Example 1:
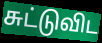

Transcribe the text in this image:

சுட்டுவிட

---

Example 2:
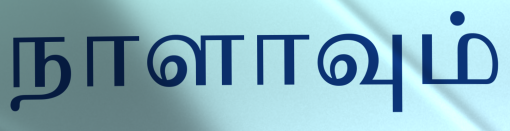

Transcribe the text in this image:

நாளாவும்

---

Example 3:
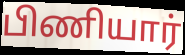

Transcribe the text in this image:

பிணியார்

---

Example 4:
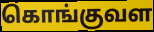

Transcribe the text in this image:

கொங்குவள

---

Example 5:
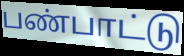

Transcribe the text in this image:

பண்பாட்டு